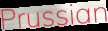
Prussian